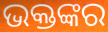
ଭକ୍ତଙ୍କର